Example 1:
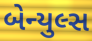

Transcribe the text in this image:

બેન્યુલ્સ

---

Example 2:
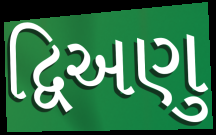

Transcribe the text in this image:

દ્વિઅણુ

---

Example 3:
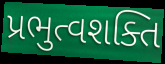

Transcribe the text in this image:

પ્રભુત્વશક્તિ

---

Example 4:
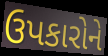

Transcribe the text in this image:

ઉપકારોને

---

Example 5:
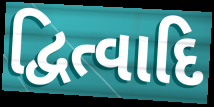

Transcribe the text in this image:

દ્વિત્વાદિ